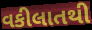
વકીલાતથી